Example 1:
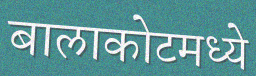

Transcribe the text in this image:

बालाकोटमध्ये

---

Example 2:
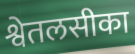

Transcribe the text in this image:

श्वेतलसीका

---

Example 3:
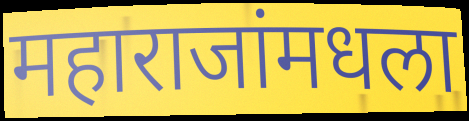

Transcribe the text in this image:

महाराजांमधला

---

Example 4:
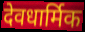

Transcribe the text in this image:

देवधार्मिक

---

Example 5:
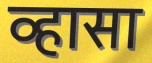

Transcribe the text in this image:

व्हासा